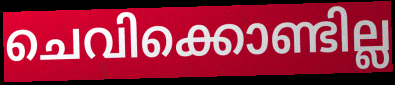
ചെവിക്കൊണ്ടില്ല